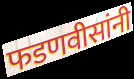
फडणवीसांनी